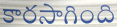
కారసాగింది